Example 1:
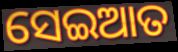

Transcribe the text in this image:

ସେଇଆତ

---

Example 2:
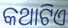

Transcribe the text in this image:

କଥାଟିଏ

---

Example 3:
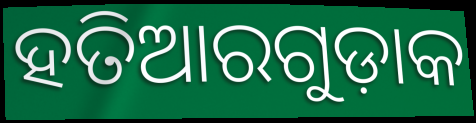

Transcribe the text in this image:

ହତିଆରଗୁଡ଼ାକ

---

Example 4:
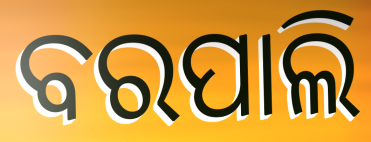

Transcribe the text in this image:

ବରପାଲି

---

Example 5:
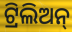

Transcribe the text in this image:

ଟ୍ରିଲିଅନ୍